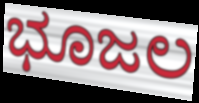
ಭೂಜಲ